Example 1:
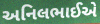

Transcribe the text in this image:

અનિલભાઈએ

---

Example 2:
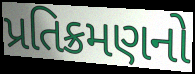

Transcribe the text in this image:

પ્રતિક્રમણનો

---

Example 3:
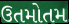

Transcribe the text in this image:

ઉતમોતમ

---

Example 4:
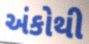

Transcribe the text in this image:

અંકોથી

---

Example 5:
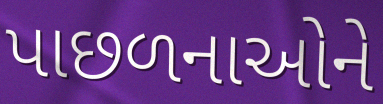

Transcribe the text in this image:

પાછળનાઓને